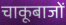
चाकूबाजों